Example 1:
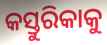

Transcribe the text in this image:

କସ୍ତୁରିକାକୁ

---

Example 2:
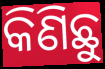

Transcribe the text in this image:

କିଣିଛୁ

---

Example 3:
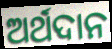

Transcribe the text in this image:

ଅର୍ଥଦାନ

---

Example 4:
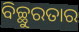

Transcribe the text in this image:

ବିଚ୍ଛୁରତାର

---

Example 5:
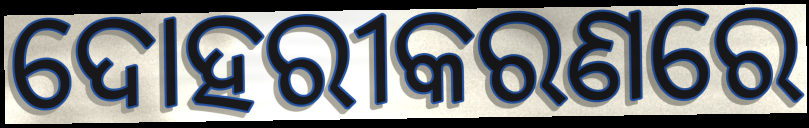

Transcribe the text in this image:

ଦୋହରୀକରଣରେ